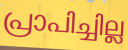
പ്രാപിച്ചില്ല